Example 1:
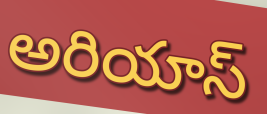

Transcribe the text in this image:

అరియాస్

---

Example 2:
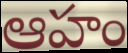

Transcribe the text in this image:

ఆహం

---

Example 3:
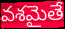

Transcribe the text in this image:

వశమైతే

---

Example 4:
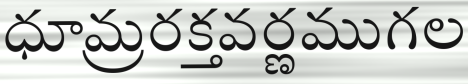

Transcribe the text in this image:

ధూమ్రరక్తవర్ణముగల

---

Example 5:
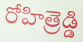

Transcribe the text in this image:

రోహిత్రెడ్డి